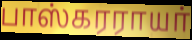
பாஸ்கரராயர்